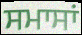
ਸਮਾਸਾਂ